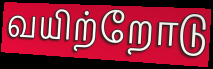
வயிற்றோடு